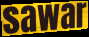
sawar